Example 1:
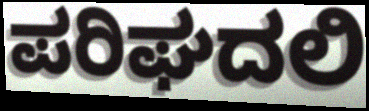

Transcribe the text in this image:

ಪರಿಘದಲಿ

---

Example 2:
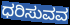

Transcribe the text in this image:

ಧರಿಸುವವ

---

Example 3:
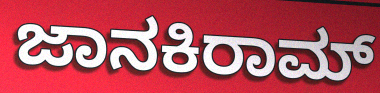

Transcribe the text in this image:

ಜಾನಕಿರಾಮ್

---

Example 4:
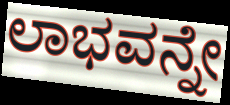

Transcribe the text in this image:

ಲಾಭವನ್ನೇ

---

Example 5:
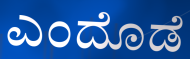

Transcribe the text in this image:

ಎಂದೊಡೆ